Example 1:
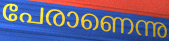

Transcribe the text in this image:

പേരാണെന്നു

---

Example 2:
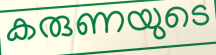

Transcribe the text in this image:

കരുണയുടെ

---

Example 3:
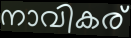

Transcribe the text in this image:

നാവികര്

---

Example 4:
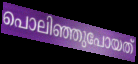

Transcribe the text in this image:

പൊലിഞ്ഞുപോയത്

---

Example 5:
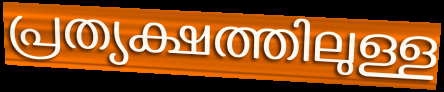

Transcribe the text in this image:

പ്രത്യക്ഷത്തിലുള്ള